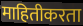
माहितीकरता